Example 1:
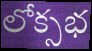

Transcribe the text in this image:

లోక్సభ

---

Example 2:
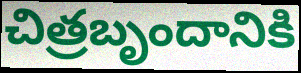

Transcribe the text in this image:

చిత్రబృందానికి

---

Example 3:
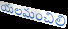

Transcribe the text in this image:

యలమంచిలి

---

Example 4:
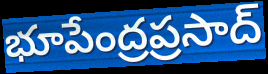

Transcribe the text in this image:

భూపేంద్రప్రసాద్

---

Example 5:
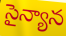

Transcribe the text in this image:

సైన్యాన